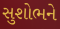
સુશોભને